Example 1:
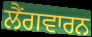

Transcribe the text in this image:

ਲੈਂਗਵਾਰਨ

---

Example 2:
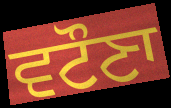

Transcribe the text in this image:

ਵਟੌਣਾ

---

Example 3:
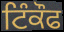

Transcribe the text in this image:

ਟਿੰਕੌਫ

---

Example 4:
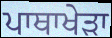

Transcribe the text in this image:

ਪਾਥਾਖੇੜਾ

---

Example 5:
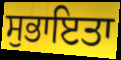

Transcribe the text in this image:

ਸੁਭਾਇਤਾ